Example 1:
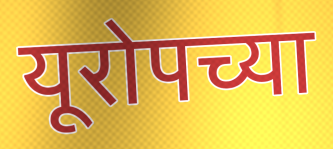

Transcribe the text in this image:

यूरोपच्या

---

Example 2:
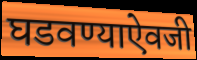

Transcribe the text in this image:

घडवण्याऐवजी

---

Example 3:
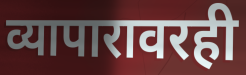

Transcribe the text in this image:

व्यापारावरही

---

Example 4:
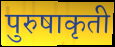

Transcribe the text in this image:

पुरुषाकृती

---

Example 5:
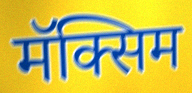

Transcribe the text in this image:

मॅक्सिम